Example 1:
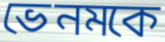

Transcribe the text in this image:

ভেনমকে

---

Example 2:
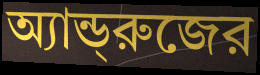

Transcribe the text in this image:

অ্যান্ড্‌রুজের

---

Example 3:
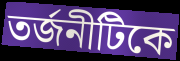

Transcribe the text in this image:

তর্জনীটিকে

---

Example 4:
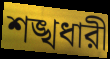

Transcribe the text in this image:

শঙ্খধারী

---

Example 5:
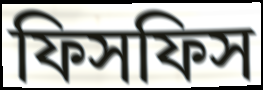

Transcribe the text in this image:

ফিসফিস